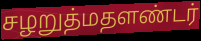
சழறுத்மதளண்டர்